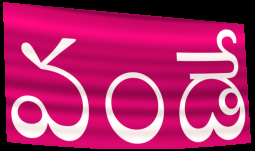
వండే